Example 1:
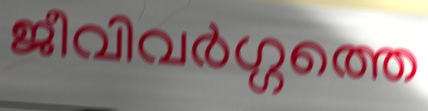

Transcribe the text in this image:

ജീവിവർഗ്ഗത്തെ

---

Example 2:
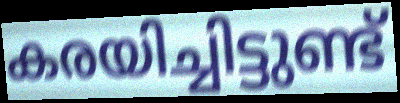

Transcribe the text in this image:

കരയിച്ചിട്ടുണ്ട്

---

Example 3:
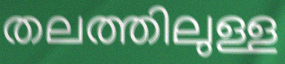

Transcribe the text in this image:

തലത്തിലുള്ള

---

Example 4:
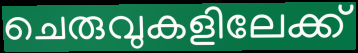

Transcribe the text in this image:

ചെരുവുകളിലേക്ക്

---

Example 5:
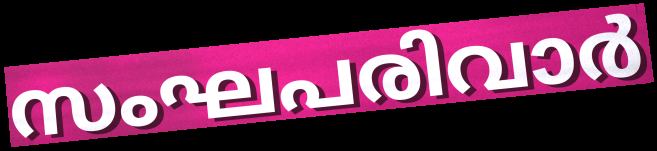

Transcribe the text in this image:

സംഘപരിവാർ